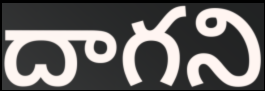
దాగని